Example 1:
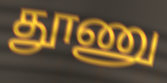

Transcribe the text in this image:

தூணு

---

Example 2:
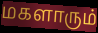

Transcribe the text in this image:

மகளாரும்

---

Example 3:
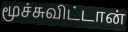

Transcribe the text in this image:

மூச்சுவிட்டான்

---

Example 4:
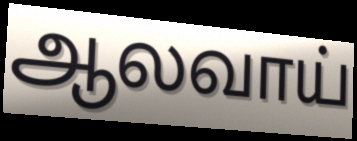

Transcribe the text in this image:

ஆலவாய்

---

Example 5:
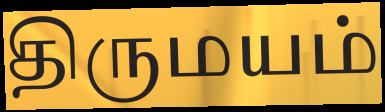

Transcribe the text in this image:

திருமயம்